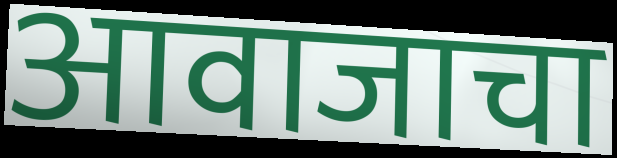
आवाजाचा